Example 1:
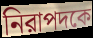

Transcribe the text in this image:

নিরাপদকে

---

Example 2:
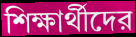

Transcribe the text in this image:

শিক্ষার্থীদের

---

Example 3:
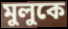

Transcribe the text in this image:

মুলুকে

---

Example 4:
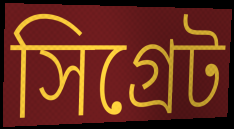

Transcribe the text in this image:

সিগ্রেট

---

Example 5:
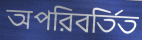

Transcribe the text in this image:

অপরিবর্তিত